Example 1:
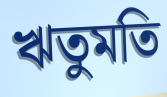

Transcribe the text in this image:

ঋতুমতি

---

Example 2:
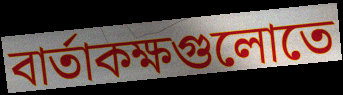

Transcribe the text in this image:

বার্তাকক্ষগুলোতে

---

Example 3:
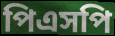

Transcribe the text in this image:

পিএসপি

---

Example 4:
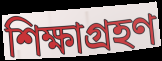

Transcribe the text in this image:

শিক্ষাগ্রহণ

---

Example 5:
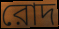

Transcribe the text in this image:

রোদ